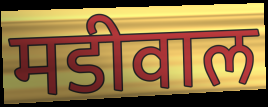
मडीवाल